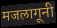
मजलागूनी